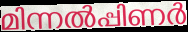
മിന്നൽപ്പിണർ